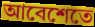
আবেশেতে